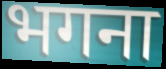
भगना